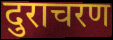
दुराचरण